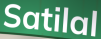
Satilal